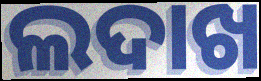
ଲଦାଖ